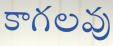
కాగలవు